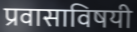
प्रवासाविषयी